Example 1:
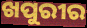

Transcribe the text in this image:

ଖପୁରୀର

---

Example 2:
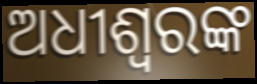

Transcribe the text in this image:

ଅଧୀଶ୍ୱରଙ୍କ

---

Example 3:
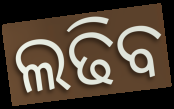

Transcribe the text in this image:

ଲଢିବ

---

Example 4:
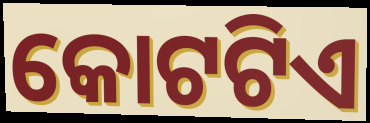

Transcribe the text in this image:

କୋଟଟିଏ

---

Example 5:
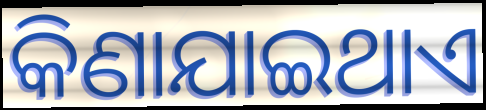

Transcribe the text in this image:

କିଣାଯାଇଥାଏ